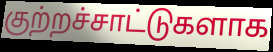
குற்றச்சாட்டுகளாக